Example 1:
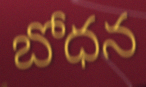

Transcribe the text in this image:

బోధన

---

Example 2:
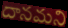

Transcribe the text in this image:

దానమని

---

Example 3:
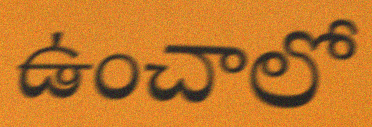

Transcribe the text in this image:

ఉంచాలో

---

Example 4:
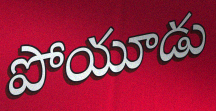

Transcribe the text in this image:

పోయూడు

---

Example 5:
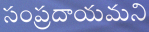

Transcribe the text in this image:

సంప్రదాయమని